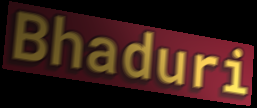
Bhaduri